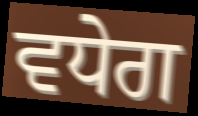
ਵਧੇਗ